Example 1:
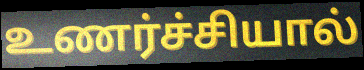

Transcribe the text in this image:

உணர்ச்சியால்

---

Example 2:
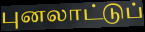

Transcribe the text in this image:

புனலாட்டுப்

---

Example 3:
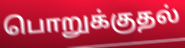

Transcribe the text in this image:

பொறுக்குதல்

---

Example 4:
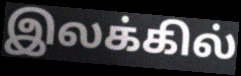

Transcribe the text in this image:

இலக்கில்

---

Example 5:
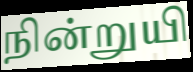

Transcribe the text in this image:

நின்றுயி